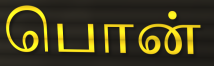
பொன்